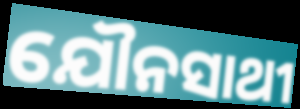
ଯୌନସାଥୀ